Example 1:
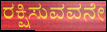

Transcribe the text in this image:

ರಕ್ಷಿಸುವವನೇ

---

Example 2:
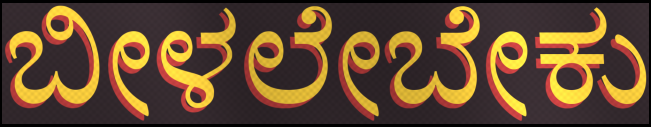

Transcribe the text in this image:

ಬೀಳಲೇಬೇಕು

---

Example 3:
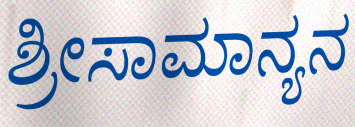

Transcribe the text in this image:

ಶ್ರೀಸಾಮಾನ್ಯನ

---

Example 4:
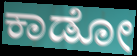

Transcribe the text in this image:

ಕಾಡೋ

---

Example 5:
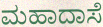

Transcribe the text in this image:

ಮಹಾದಾಸೆ